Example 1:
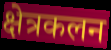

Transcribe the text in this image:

क्षेत्रकलन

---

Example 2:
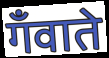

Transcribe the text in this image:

गँवाते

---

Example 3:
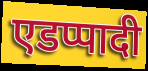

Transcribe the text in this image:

एडप्पादी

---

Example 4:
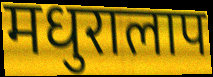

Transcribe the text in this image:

मधुरालाप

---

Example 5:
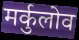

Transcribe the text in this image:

मर्कुलोव